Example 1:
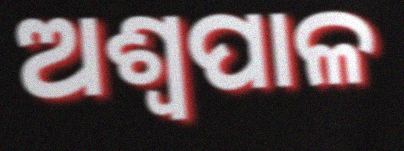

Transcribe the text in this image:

ଅଶ୍ୱପାଳ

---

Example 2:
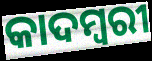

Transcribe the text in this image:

କାଦମ୍ୱରୀ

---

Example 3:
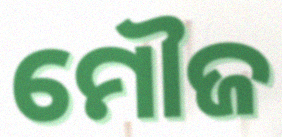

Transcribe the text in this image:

ମୌଜ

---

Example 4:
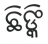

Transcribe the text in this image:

ଛିଙ୍କି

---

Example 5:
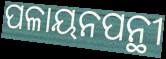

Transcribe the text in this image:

ପଳାୟନପନ୍ଥୀ